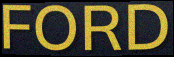
FORD